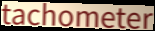
tachometer